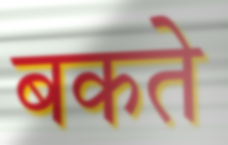
बकते